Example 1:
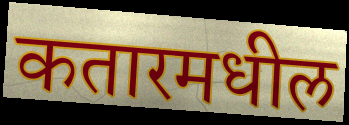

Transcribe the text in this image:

कतारमधील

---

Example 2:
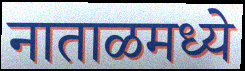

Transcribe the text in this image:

नाताळमध्ये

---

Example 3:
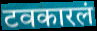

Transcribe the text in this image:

टवकारलं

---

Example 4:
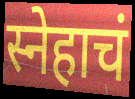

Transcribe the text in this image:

स्नेहाचं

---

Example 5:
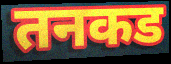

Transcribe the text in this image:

तनकड